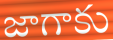
జాగాకు